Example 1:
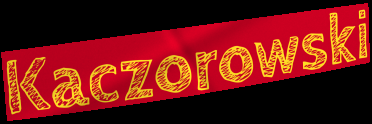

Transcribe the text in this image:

Kaczorowski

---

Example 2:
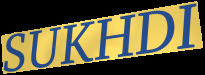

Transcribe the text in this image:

SUKHDI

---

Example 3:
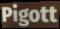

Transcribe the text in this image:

Pigott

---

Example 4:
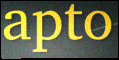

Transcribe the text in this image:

apto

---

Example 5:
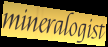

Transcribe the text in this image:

mineralogist